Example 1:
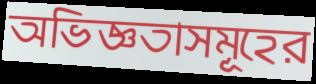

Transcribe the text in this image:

অভিজ্ঞতাসমূহের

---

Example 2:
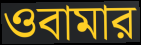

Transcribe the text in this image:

ওবামার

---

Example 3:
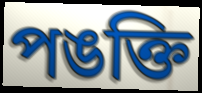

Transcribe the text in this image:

পঙক্তি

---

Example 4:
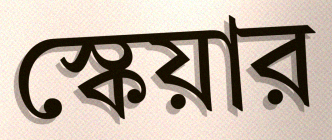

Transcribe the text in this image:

স্কেয়ার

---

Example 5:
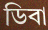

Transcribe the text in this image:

ডিবা